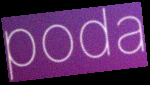
poda